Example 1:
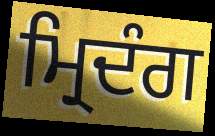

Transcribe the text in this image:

ਮ੍ਰਿਦੰਗ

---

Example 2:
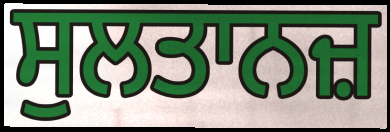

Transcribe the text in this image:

ਸੁਲਤਾਨਜ਼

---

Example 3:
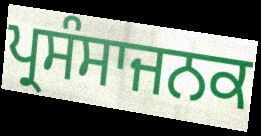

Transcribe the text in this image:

ਪ੍ਰਸੰਸਾਜਨਕ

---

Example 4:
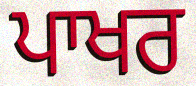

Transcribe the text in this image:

ਪਾਖਰ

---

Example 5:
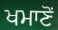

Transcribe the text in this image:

ਖਮਾਣੋਂ